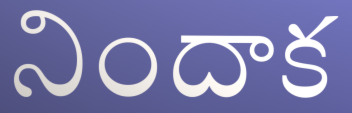
నిందాక